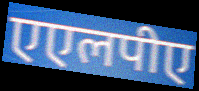
एएलपीए